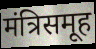
मंत्रिसमूह